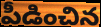
పీడించిన